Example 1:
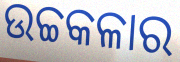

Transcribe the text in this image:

ଉଚ୍ଚକଳାର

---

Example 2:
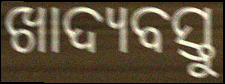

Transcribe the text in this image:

ଖାଦ୍ୟବସ୍ତୁ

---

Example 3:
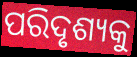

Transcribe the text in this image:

ପରିଦୃଶ୍ୟକୁ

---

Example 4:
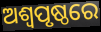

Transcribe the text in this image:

ଅଶ୍ଵପୃଷ୍ଠରେ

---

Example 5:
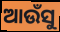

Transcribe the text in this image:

ଆଉଁସୁ